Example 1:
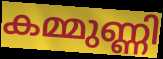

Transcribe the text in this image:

കമ്മുണ്ണി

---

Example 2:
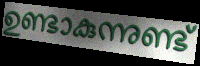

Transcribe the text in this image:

ഉണ്ടാകുന്നുണ്ട്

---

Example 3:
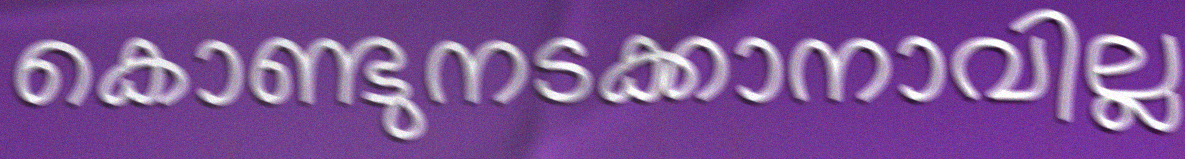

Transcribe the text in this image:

കൊണ്ടുനടക്കാനാവില്ല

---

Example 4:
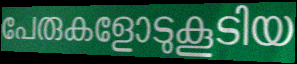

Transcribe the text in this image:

പേരുകളോടുകൂടിയ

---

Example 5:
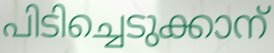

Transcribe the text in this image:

പിടിച്ചെടുക്കാന്